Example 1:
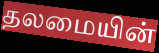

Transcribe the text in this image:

தலமையின்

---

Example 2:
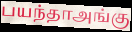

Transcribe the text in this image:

பயந்தாஅங்கு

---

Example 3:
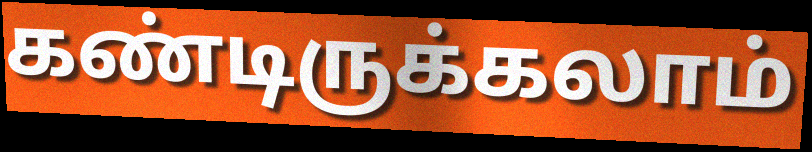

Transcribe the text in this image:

கண்டிருக்கலாம்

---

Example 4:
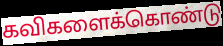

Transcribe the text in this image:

கவிகளைக்கொண்டு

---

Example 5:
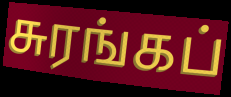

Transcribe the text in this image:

சுரங்கப்